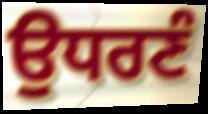
ਉਧਰਣੰ